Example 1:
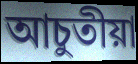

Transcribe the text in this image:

আচুতীয়া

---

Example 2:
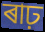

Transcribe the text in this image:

ৰাঢ়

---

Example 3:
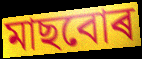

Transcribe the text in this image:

মাছবোৰ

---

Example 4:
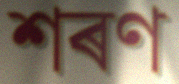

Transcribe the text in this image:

শৰণ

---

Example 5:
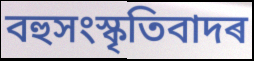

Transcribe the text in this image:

বহুসংস্কৃতিবাদৰ